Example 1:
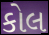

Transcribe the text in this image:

કોલ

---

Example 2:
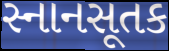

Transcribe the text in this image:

સ્નાનસૂતક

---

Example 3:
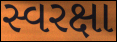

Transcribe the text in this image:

સ્વરક્ષા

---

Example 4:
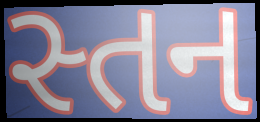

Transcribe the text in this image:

સ્તન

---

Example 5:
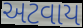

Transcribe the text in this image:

અટવાય